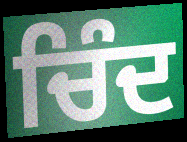
ਚਿੰਦ